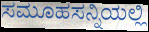
ಸಮೂಹಸನ್ನಿಯಲ್ಲಿ